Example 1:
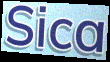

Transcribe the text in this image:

Sica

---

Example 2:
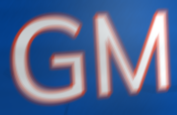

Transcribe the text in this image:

GM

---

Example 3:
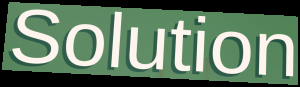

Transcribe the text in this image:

Solution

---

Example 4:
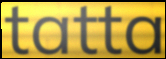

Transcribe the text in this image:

tatta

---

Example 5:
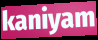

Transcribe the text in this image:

kaniyam